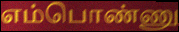
எம்பொண்ணு